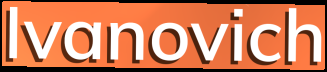
Ivanovich